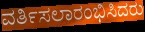
ವರ್ತಿಸಲಾರಂಭಿಸಿದರು